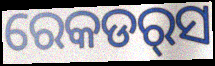
ରେକଡର୍‌ସ